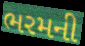
ભરમની